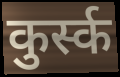
कुर्स्क